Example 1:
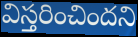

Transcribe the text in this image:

విస్తరించిందని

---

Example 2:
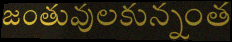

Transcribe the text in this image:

జంతువులకున్నంత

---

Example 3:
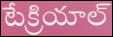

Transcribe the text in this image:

టేక్రియాల్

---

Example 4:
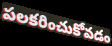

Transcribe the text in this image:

పలకరించుకోవడం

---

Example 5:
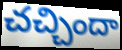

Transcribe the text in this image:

చచ్చిందా